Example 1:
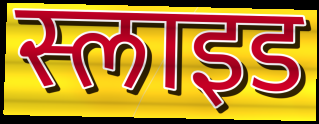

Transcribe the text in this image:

स्लाइड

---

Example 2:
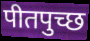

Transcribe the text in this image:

पीतपुच्छ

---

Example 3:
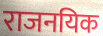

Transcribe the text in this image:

राजनयिक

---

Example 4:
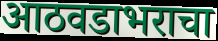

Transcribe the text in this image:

आठवडाभराचा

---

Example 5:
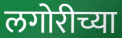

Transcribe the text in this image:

लगोरीच्या